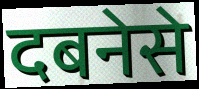
दबनेसे